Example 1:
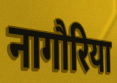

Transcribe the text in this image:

नागौरिया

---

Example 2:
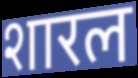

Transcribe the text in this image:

शारल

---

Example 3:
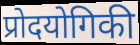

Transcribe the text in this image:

प्रोदयोगिकी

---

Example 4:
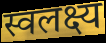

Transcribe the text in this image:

स्वलक्ष्य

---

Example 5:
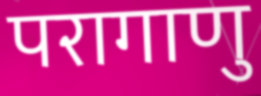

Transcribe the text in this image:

परागाणु